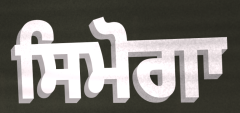
ਸਿਮੋਗਾ